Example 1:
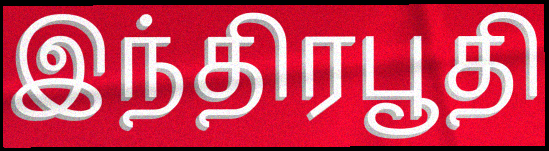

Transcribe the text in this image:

இந்திரபூதி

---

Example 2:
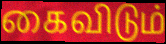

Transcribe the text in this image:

கைவிடும்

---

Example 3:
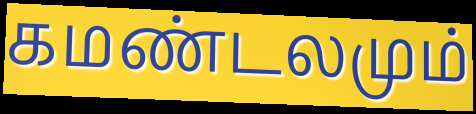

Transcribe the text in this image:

கமண்டலமும்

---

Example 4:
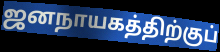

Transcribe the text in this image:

ஜனநாயகத்திற்குப்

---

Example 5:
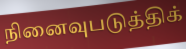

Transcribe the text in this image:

நினைவுபடுத்திக்